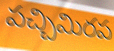
పచ్చిమిరప